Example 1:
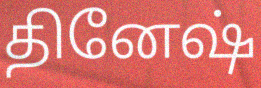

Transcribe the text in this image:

தினேஷ்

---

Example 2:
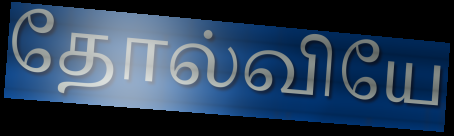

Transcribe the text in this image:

தோல்வியே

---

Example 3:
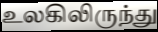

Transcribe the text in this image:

உலகிலிருந்து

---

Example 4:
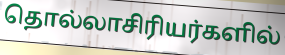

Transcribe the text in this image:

தொல்லாசிரியர்களில்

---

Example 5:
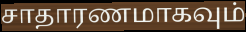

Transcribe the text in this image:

சாதாரணமாகவும்